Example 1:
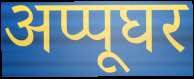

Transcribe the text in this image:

अप्पूघर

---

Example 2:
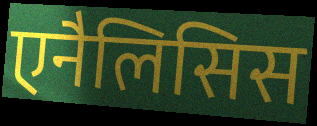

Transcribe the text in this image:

एनैलिसिस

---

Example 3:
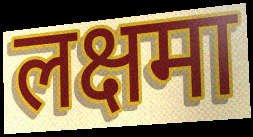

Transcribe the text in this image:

लक्षमा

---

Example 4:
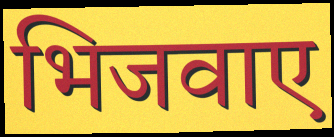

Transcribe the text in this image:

भिजवाए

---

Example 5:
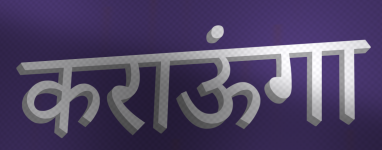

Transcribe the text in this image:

कराऊंगा